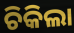
ଚିକିଲା